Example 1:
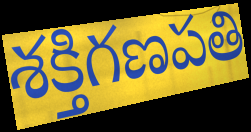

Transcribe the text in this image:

శక్తిగణపతి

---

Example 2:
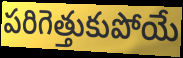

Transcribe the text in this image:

పరిగెత్తుకుపోయే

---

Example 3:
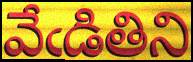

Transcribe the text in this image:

వేఁడితిని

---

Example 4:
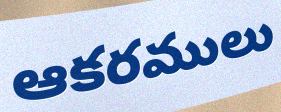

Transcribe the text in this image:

ఆకరములు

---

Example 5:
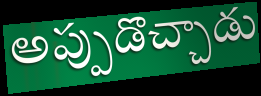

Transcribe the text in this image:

అప్పుడొచ్చాడు